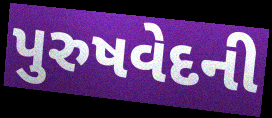
પુરુષવેદની